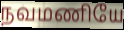
நவமணியே